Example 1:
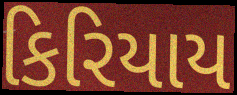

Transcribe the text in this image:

કિરિયાય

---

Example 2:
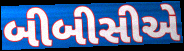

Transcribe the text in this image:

બીબીસીએ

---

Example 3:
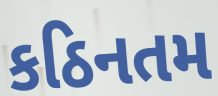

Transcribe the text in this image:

કઠિનતમ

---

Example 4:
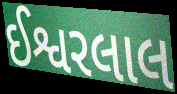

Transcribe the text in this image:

ઈશ્વરલાલ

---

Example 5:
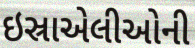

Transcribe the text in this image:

ઇસ્રાએલીઓની